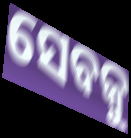
ସେବକୁ